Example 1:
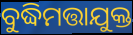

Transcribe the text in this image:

ବୁଦ୍ଧିମତ୍ତାଯୁକ୍ତ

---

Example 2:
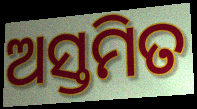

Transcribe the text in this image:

ଅସ୍ତମିତ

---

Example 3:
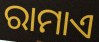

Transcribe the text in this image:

ରାମାଏ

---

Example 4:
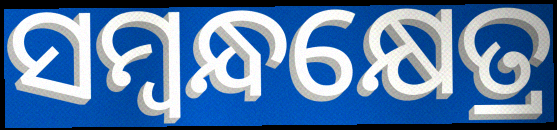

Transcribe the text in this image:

ସମ୍ବନ୍ଧକ୍ଷେତ୍ର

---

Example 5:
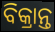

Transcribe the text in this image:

ବିକ୍ରାନ୍ତ